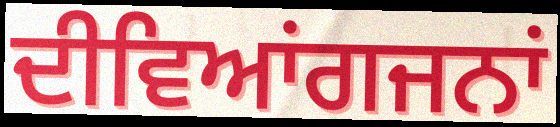
ਦੀਵਿਆਂਗਜਨਾਂ